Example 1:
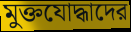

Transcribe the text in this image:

মুক্তযোদ্ধাদের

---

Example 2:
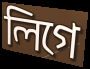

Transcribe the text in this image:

লিগে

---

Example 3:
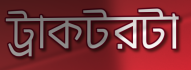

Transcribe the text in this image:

ট্রাকটরটা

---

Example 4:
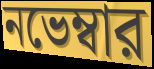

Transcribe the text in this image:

নভেম্বার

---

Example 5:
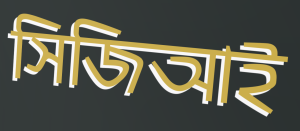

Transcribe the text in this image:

সিজিআই